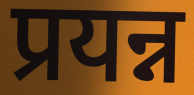
प्रयन्न